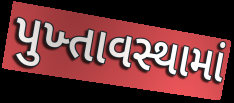
પુખ્તાવસ્થામાં